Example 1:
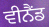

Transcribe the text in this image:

ਵੀਨੈਂਡ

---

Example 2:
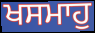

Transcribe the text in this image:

ਖਸਮਾਹੁ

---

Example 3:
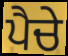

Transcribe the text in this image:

ਪੈਚੇ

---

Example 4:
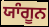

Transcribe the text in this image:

ਯਾੰਗੂਨ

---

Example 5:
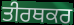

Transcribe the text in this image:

ਤੀਰਥਕਰ